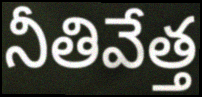
నీతివేత్త